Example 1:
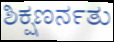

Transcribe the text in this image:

ಶಿಕ್ಷಣರ್ನತು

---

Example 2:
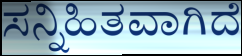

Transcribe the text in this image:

ಸನ್ನಿಹಿತವಾಗಿದೆ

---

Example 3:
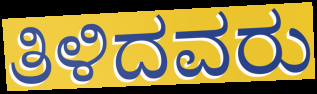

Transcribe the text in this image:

ತಿಳಿದವರು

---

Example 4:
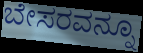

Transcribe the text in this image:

ಬೇಸರವನ್ನೂ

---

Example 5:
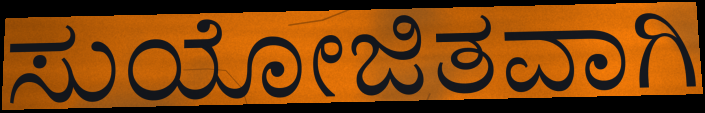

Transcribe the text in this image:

ಸುಯೋಜಿತವಾಗಿ